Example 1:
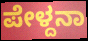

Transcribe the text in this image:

ಪೇಳ್ದನಾ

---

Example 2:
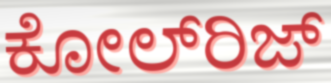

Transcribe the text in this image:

ಕೋಲ್‍ರಿಜ್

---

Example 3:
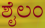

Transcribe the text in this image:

ಶೈಲಂ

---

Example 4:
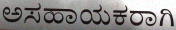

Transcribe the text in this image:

ಅಸಹಾಯಕರಾಗಿ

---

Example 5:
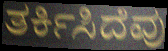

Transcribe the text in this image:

ತರ್ಕಿಸಿದೆವು